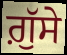
ਗ਼ੁੱਸੇ